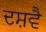
ਦਸ਼ਵੈ